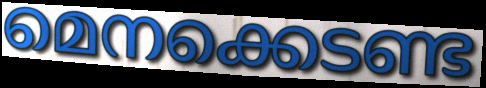
മെനക്കെടണ്ട